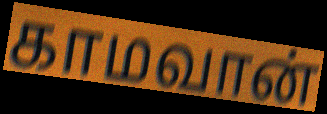
காமவான்